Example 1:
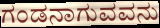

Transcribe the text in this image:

ಗಂಡನಾಗುವವನು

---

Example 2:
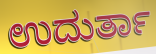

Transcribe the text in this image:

ಉದುರ್ತಾ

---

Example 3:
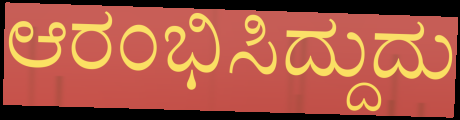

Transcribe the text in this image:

ಆರಂಭಿಸಿದ್ದುದು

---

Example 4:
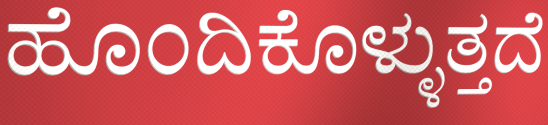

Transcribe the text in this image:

ಹೊಂದಿಕೊಳ್ಳುತ್ತದೆ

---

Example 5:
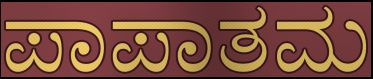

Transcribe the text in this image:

ಪಾಪಾತಮ